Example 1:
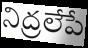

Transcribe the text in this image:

నిద్రలేపే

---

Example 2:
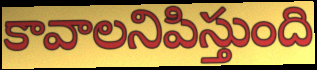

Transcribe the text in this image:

కావాలనిపిస్తుంది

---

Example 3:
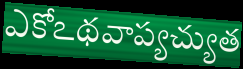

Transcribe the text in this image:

ఎకోఽథవాప్యచ్యుత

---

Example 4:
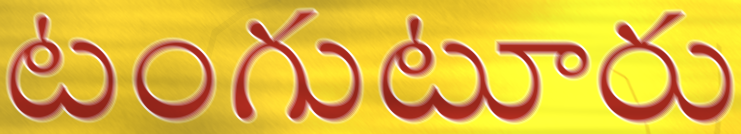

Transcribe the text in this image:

టంగుటూరు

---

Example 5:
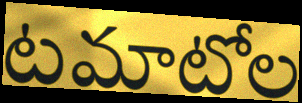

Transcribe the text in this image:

టమాటోల